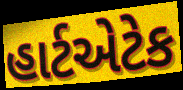
હાર્ટએટેક